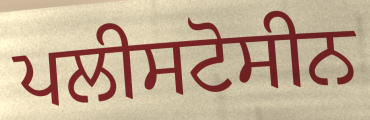
ਪਲੀਸਟੋਸੀਨ